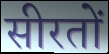
सीरतों